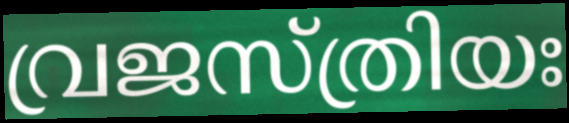
വ്രജസ്ത്രിയഃ